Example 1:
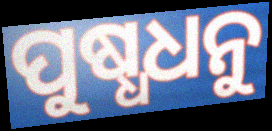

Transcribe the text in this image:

ପୁଷ୍ଧଧନୁ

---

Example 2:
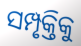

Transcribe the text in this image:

ସମ୍ପୃକ୍ତିକୁ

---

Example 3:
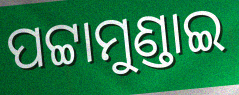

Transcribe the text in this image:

ପଟ୍ଟାମୁଣ୍ଡାଇ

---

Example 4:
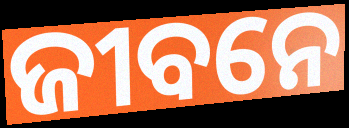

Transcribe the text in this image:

ଜୀବନେ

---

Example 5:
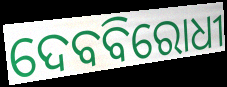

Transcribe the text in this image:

ଦେବବିରୋଧୀ